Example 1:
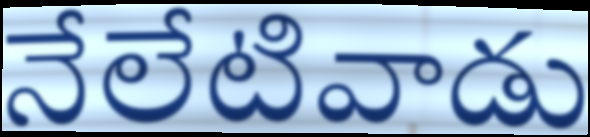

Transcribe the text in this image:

నేలేటివాడు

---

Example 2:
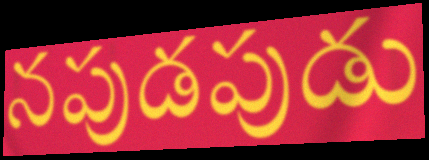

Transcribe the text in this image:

నపుడపుడు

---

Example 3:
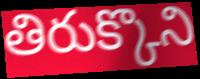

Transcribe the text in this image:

తిరుక్కొని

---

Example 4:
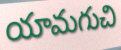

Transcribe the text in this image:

యామగుచి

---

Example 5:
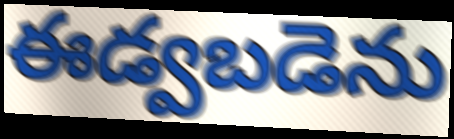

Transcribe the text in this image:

ఈడ్వబడెను